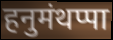
हनुमंथप्पा